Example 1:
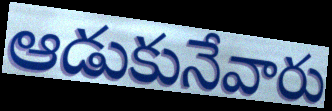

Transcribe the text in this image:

ఆడుకునేవారు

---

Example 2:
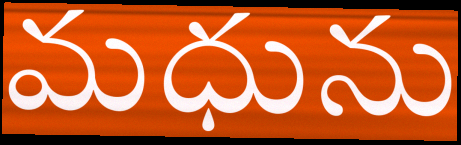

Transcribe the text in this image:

మధును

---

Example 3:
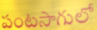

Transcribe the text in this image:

పంటసాగులో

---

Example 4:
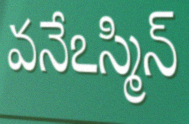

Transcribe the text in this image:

వనేఽస్మిన్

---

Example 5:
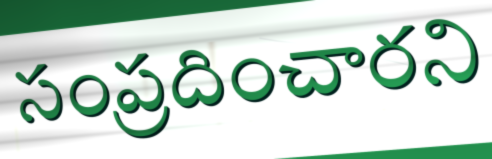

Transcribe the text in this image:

సంప్రదించారని